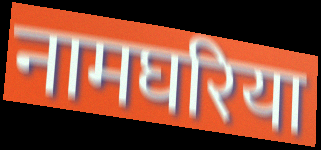
नामघरिया